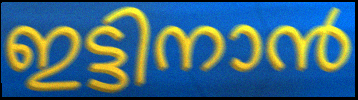
ഇട്ടിനാൻ